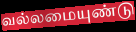
வல்லமையுண்டு